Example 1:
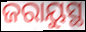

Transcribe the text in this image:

ଜରାୟୁସ୍ଥ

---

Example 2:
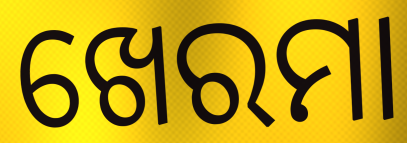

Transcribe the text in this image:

ଖେରମା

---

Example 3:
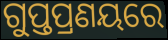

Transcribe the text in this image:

ଗୁପ୍ତପ୍ରଣୟରେ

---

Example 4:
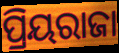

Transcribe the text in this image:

ପ୍ରିୟରାଜା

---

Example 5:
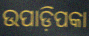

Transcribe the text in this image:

ଉପାଡ଼ିପକା